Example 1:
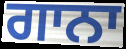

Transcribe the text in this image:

ਗਾਨਾ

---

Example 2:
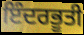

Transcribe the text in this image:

ਇੰਦਰਭੂਤੀ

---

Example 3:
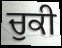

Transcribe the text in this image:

ਚੁਕੀ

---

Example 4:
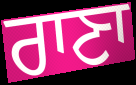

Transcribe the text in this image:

ਰਾਣਾ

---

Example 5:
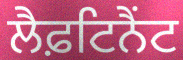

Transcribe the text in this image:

ਲੈਫ਼ਟਿਨੈਂਟ